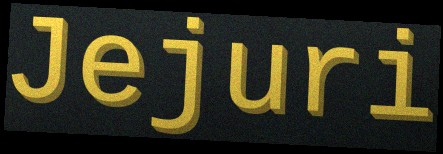
Jejuri